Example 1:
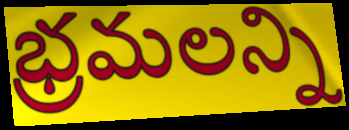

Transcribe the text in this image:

భ్రమలన్ని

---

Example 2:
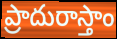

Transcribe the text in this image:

ప్రాదురాస్తాం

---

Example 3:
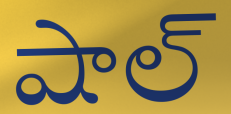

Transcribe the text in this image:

షాల్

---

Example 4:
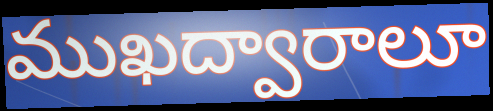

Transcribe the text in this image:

ముఖద్వారాలూ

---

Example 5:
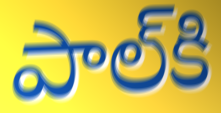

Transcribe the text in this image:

పాల్‌కి